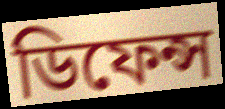
ডিফেন্স